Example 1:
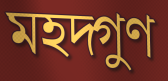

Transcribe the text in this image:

মহদ্গুণ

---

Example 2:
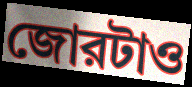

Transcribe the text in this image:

জোরটাও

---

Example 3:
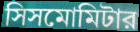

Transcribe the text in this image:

সিসমোমিটার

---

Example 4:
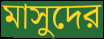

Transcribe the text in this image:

মাসুদের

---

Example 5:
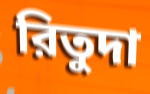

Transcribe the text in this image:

রিতুদা